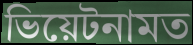
ভিয়েটনামত